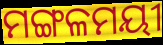
ମଙ୍ଗଳମୟୀ